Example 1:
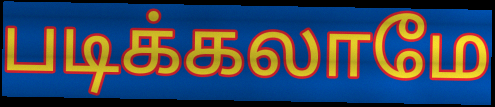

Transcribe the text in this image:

படிக்கலாமே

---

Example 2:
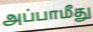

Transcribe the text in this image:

அப்பாமீது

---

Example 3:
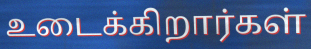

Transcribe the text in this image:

உடைக்கிறார்கள்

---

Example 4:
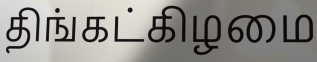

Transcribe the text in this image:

திங்கட்கிழமை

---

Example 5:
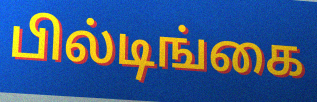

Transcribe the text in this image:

பில்டிங்கை